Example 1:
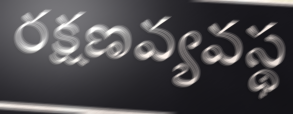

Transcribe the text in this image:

రక్షణవ్యవస్థ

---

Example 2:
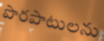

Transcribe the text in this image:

పొరపాటులను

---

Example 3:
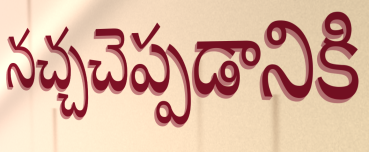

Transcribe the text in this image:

నచ్చచెప్పడానికి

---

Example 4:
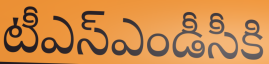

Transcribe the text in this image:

టీఎస్ఎండీసీకి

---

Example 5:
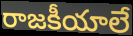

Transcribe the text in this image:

రాజకీయాలే